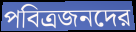
পবিত্রজনদের